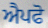
ਐਪਫੋ